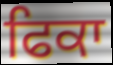
ਫਿਕਾ